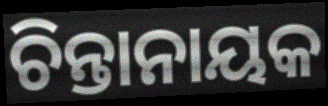
ଚିନ୍ତାନାୟକ